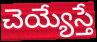
చెయ్యేస్తే